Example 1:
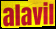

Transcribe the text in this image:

alavil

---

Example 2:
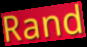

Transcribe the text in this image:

Rand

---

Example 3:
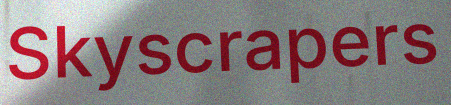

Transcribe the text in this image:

Skyscrapers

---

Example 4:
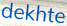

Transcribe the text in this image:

dekhte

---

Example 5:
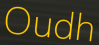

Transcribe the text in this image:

Oudh